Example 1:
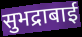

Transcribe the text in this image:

सुभद्राबाई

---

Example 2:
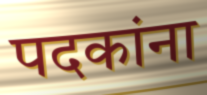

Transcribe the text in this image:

पदकांना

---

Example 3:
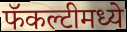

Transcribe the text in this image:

फॅकल्टीमध्ये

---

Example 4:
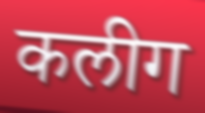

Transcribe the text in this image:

कलीग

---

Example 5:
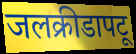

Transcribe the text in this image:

जलक्रीडापटू